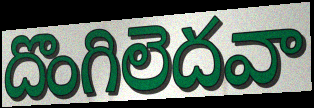
దొంగిలెదవా